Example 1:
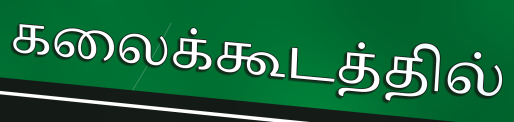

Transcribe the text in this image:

கலைக்கூடத்தில்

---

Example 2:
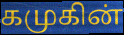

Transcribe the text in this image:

கமுகின்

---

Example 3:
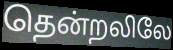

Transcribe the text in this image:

தென்றலிலே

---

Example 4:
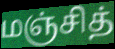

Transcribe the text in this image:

மஞ்சித்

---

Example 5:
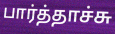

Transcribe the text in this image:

பார்த்தாச்சு